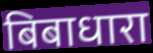
बिबाधारा